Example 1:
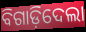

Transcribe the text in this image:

ବିଗାଡ଼ିଦେଲା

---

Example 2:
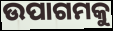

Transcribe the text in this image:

ଉପାଗମକୁ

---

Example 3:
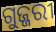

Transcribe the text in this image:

ଗୁଜ୍ଜରୀ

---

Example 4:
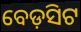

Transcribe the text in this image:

ବେଡ଼ସିଟ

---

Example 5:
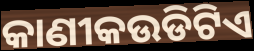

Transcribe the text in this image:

କାଣୀକଉଡିଟିଏ